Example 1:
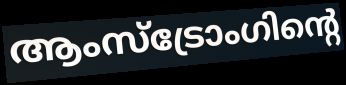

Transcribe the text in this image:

ആംസ്ട്രോംഗിന്റെ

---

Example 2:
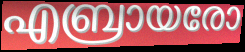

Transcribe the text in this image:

എബ്രായരോ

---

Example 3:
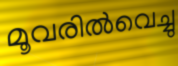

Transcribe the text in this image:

മൂവരിൽവെച്ചു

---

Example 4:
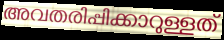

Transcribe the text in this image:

അവതരിപ്പിക്കാറുള്ളത്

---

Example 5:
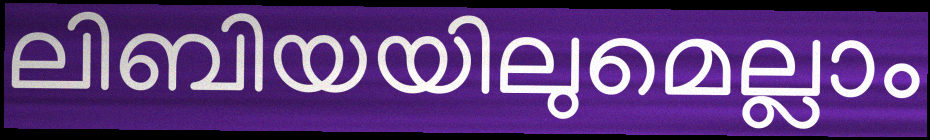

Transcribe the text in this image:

ലിബിയയിലുമെല്ലാം